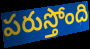
పరుస్తోంది